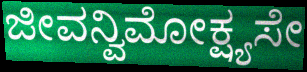
ಜೀವನ್ವಿಮೋಕ್ಷ್ಯಸೇ